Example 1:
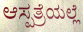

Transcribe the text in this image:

ಆಸ್ಪತ್ರೆಯಲ್ಲೆ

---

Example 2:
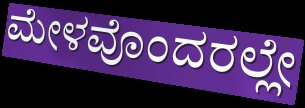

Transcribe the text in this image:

ಮೇಳವೊಂದರಲ್ಲೇ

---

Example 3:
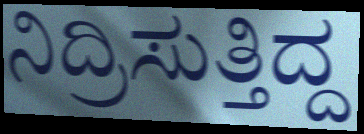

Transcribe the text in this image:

ನಿದ್ರಿಸುತ್ತಿದ್ದ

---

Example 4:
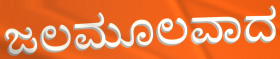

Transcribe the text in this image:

ಜಲಮೂಲವಾದ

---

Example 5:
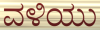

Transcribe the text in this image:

ವಳಿಯು